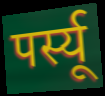
पर्स्यू